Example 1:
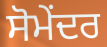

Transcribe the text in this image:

ਸੋਮੇਂਦਰ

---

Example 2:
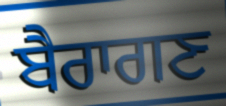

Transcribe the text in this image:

ਬੈਰਾਗਣ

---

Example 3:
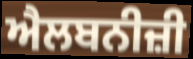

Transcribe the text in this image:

ਐਲਬਨੀਜ਼ੀ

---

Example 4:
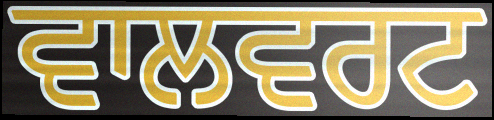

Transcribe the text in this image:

ਵਾਲਵਰਟ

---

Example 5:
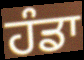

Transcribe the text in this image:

ਹੰਡਾ